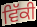
ਵਿੱਕੀ